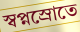
স্বপ্নস্রোতে